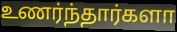
உணர்ந்தார்களா